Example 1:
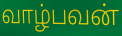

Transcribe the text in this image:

வாழ்பவன்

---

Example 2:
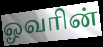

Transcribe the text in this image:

ஓவரின்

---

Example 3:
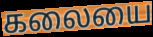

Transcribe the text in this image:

கலையை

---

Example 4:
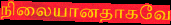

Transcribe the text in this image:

நிலையானதாகவே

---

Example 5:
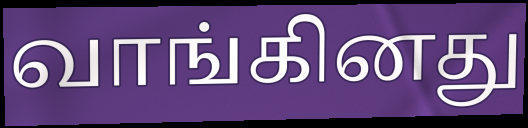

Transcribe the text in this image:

வாங்கினது